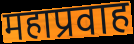
महाप्रवाह